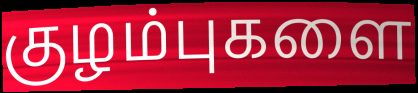
குழம்புகளை